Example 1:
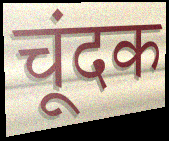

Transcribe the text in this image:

चूंदक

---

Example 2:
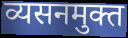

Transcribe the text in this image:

व्यसनमुक्त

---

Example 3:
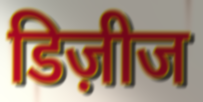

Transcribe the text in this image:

डिज़ीज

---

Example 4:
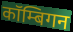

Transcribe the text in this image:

कॉम्बिगन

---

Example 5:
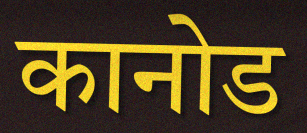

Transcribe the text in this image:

कानोड